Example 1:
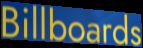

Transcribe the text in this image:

Billboards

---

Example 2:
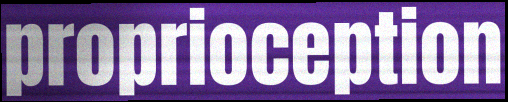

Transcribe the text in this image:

proprioception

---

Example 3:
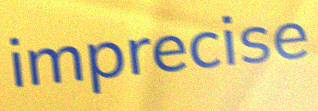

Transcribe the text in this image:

imprecise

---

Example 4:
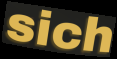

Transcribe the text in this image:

sich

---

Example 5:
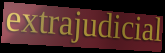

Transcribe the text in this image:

extrajudicial